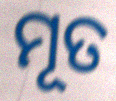
ମୂତ